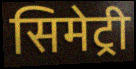
सिमेट्री